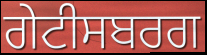
ਗੇਟੀਸਬਰਗ